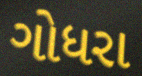
ગોધરા